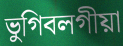
ভুগিবলগীয়া